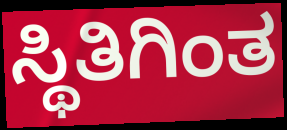
ಸ್ಥಿತಿಗಿಂತ